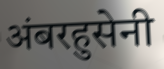
अंबरहुसेनी